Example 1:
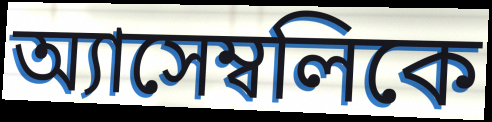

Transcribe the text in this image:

অ্যাসেম্বলিকে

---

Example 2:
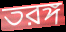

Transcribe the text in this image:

তরঙ্গ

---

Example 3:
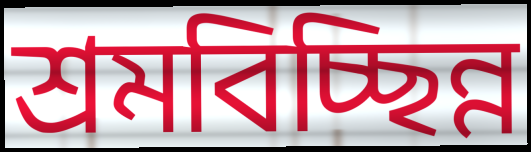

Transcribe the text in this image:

শ্রমবিচ্ছিন্ন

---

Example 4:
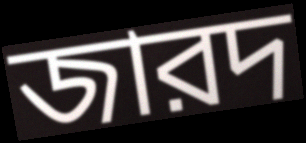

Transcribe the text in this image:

জারদ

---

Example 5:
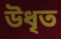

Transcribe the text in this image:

উধৃত